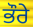
ਭੌਰੇ